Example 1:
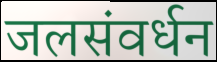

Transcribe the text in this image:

जलसंवर्धन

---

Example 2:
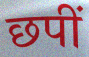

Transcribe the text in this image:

छपीं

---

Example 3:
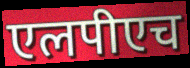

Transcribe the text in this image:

एलपीएच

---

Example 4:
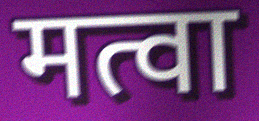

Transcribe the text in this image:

मत्वा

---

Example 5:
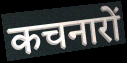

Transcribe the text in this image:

कचनारों